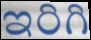
ఇరిగి